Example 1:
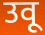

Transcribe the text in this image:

उवू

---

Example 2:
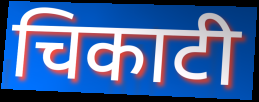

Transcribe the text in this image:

चिकाटी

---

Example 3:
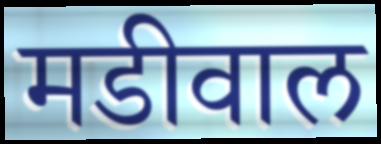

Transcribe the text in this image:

मडीवाल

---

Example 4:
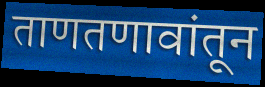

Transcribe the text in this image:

ताणतणावांतून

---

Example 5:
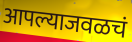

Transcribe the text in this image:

आपल्याजवळचं